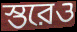
স্তরেও